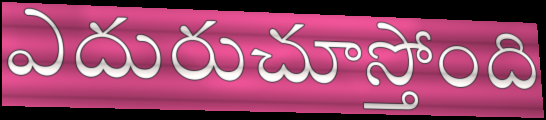
ఎదురుచూస్తోంది